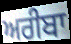
ਅਰੀਬਾ